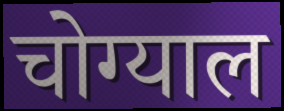
चोग्याल